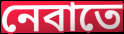
নেবাতে